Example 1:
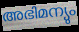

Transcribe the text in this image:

അഭിമന്യും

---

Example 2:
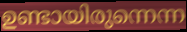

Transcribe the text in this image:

ഉണ്ടായിരുന്നെന്ന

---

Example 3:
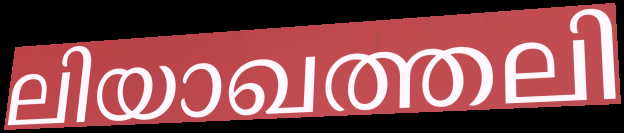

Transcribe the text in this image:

ലിയാഖത്തലി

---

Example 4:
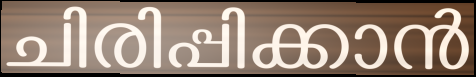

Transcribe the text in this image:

ചിരിപ്പിക്കാൻ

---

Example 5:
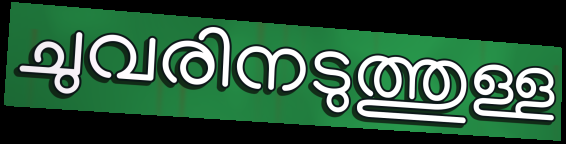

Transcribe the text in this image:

ചുവരിനടുത്തുള്ള